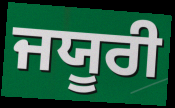
ਜਯੂਰੀ